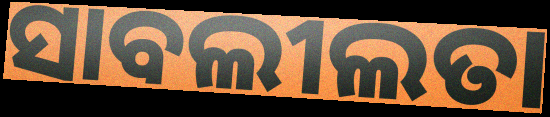
ସାବଲୀଲତା